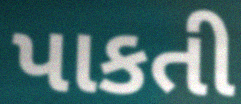
પાકતી